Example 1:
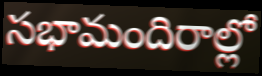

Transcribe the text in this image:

సభామందిరాల్లో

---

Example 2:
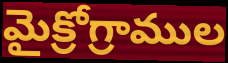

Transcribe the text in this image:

మైక్రోగ్రాముల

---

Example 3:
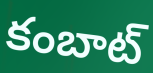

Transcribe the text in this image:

కంబాట్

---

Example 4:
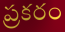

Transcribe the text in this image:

ప్రకరం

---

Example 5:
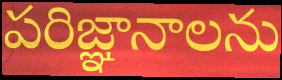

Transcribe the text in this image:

పరిజ్ఞానాలను